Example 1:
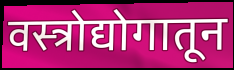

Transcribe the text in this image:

वस्त्रोद्योगातून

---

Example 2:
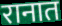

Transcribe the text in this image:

रानात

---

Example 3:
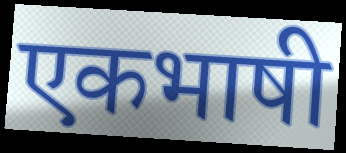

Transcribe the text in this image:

एकभाषी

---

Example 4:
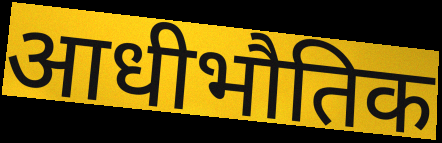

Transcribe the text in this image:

आधीभौतिक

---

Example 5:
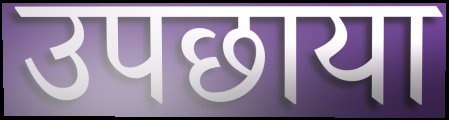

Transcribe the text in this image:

उपछाया